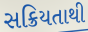
સક્રિયતાથી